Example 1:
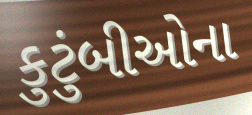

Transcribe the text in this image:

કુટુંબીઓના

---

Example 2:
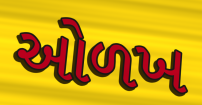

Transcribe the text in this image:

ઓળખ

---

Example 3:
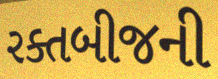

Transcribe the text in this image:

રક્તબીજની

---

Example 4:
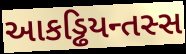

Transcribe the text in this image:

આકડ્ઢિયન્તસ્સ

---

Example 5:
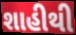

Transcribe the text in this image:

શાહીથી